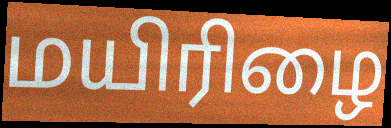
மயிரிழை